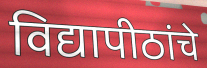
विद्यापीठांचे